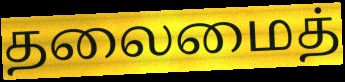
தலைமைத்